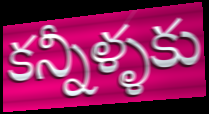
కన్నీళ్ళకు